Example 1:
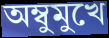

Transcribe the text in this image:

অম্বুমুখে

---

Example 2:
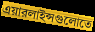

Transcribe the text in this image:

এয়ারলাইন্সগুলোতে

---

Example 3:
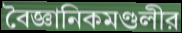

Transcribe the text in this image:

বৈজ্ঞানিকমণ্ডলীর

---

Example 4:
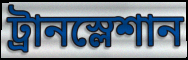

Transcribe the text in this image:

ট্রানস্লেশান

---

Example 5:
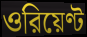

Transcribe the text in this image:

ওরিয়েণ্ট